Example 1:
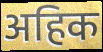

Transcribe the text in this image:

अहिक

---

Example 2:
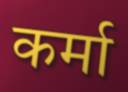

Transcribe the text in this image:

कर्मा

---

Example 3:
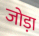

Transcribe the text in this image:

जोड़ा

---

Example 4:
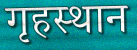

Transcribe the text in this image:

गृहस्थान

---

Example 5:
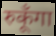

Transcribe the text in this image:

रुकूँगा